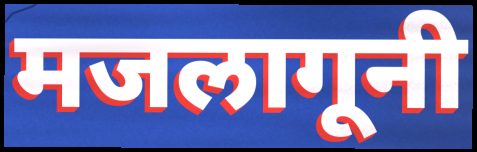
मजलागूनी